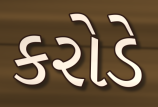
કરોડે